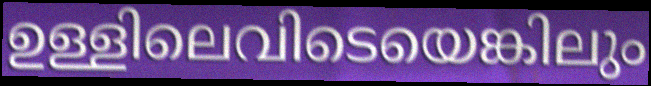
ഉള്ളിലെവിടെയെങ്കിലും